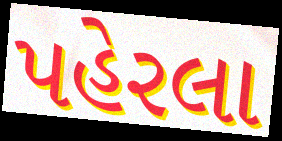
પહેરલા